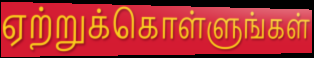
ஏற்றுக்கொள்ளுங்கள்